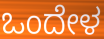
ಒಂದೇಳ